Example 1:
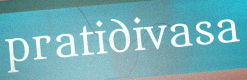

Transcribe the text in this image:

pratidivasa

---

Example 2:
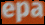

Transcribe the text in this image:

epa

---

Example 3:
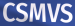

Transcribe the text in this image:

CSMVS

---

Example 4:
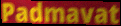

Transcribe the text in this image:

Padmavat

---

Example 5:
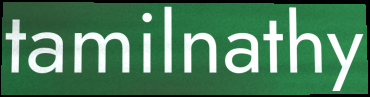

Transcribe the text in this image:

tamilnathy